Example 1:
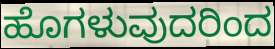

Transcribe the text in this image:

ಹೊಗಳುವುದರಿಂದ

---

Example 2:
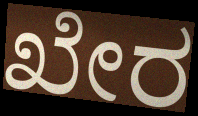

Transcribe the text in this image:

ಖೇರ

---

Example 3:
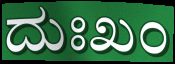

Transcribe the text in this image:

ದುಃಖಂ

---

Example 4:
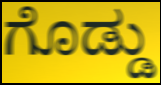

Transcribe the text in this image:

ಗೊಡ್ಡು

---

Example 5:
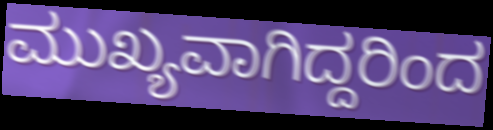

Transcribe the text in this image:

ಮುಖ್ಯವಾಗಿದ್ದರಿಂದ